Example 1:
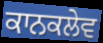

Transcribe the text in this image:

ਕਾਨਕਲੇਵ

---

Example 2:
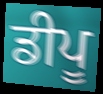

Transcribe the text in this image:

ਡੀਪੂ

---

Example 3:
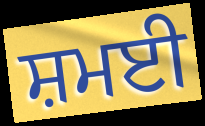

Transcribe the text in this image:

ਸ਼ਮਈ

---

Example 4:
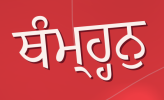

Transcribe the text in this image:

ਥੰਮ੍ਹ੍ਹਨੁ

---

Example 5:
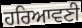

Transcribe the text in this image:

ਹਰਿਆਵਣੀ